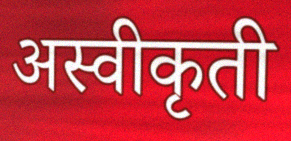
अस्वीकृती